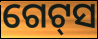
ଗେଟ୍‌ସ